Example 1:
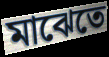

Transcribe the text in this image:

মাঝেতে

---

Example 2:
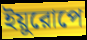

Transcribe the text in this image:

ইয়ুরোপে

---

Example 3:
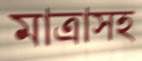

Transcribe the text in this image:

মাত্রাসহ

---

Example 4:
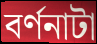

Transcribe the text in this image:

বর্ণনাটা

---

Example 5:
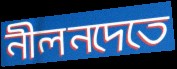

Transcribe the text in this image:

নীলনদেতে